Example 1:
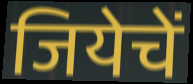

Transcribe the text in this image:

जियेचें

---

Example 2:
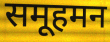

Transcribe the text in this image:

समूहमन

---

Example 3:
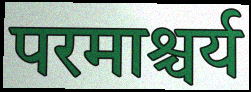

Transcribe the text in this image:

परमाश्चर्य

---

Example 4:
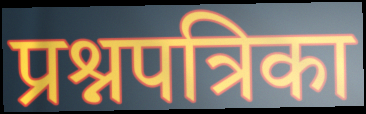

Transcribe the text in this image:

प्रश्नपत्रिका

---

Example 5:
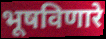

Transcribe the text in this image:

भूषविणारे